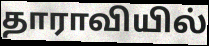
தாராவியில்